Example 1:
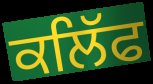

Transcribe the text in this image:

ਕਲਿੱਫ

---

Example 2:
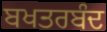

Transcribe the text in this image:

ਬਖਤਰਬੰਦ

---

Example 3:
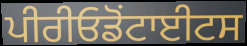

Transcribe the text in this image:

ਪੀਰੀਓਡੋਂਟਾਈਟਸ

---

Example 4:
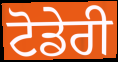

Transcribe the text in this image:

ਟੋਡੇਰੀ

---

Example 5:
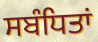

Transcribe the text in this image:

ਸਬੰਧਿਤਾਂ